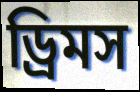
ড্রিমস